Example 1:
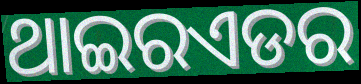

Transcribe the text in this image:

ଥାଇରଏଡର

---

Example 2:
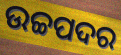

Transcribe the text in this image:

ଉଚ୍ଚପଦର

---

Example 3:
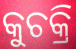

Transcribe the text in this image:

କୁଚକ୍ରି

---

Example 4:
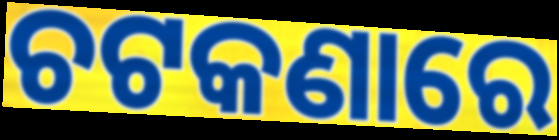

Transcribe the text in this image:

ଚଟକଣାରେ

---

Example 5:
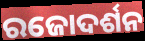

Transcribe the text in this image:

ରଜୋଦର୍ଶନ